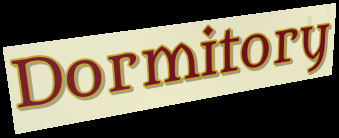
Dormitory